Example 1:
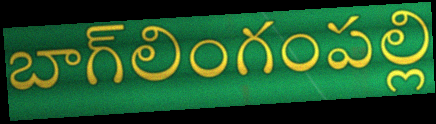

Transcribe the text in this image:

బాగ్‌లింగంపల్లి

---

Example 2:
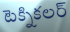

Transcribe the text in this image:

టెక్నికలర్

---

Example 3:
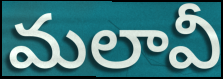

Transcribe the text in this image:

మలావీ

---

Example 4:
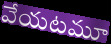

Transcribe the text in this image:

వేయటమూ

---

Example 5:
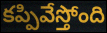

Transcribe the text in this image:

కప్పివేస్తోంది